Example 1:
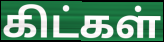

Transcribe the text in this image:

கிட்கள்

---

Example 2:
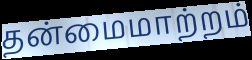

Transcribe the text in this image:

தன்மைமாற்றம்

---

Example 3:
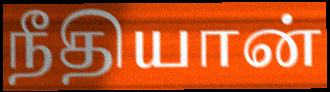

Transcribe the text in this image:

நீதியான்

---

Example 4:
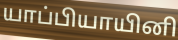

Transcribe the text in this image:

யாப்பியாயினி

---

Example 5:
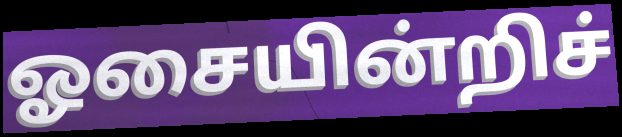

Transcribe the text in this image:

ஓசையின்றிச்